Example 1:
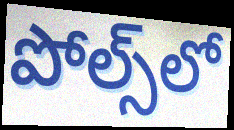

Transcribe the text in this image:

పోల్స్‌లో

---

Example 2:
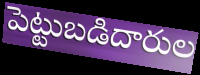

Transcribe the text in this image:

పెట్టుబడిదారుల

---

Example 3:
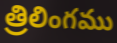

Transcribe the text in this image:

త్రిలింగము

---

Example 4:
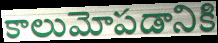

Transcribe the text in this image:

కాలుమోపడానికి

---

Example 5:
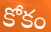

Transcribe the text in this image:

కోకం